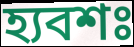
হ্যবশঃ